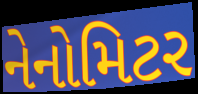
નેનોમિટર